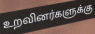
உறவினர்களுக்கு